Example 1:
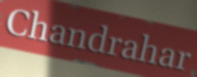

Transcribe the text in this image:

Chandrahar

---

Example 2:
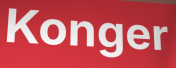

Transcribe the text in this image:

Konger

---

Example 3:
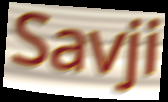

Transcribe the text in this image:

Savji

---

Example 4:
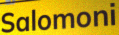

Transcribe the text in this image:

Salomoni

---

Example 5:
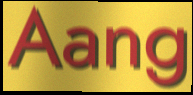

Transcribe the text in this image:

Aang